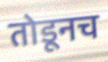
तोडूनच